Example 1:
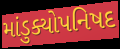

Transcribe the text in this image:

માંડુક્યોપનિષદ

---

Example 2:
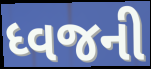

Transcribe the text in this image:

ધ્વજની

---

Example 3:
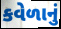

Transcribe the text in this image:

કવેળાનું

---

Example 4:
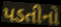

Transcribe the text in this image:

પડતીનો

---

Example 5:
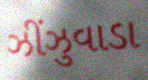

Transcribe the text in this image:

ઝીંઝુવાડા